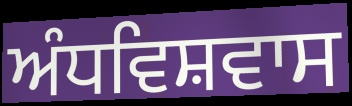
ਅੰਧਵਿਸ਼ਵਾਸ